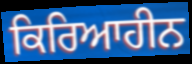
ਕਿਰਿਆਹੀਨ